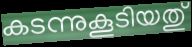
കടന്നുകൂടിയതു്